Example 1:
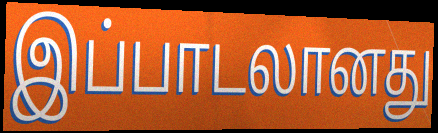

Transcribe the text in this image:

இப்பாடலானது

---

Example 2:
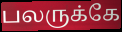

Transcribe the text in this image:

பலருக்கே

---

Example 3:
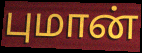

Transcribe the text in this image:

புமான்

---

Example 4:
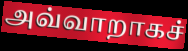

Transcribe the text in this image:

அவ்வாறாகச்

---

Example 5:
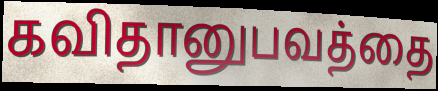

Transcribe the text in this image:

கவிதானுபவத்தை